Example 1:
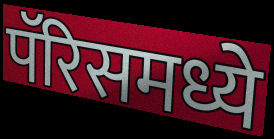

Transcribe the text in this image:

पॅरिसमध्ये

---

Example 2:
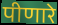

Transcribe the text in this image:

पीणारे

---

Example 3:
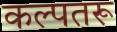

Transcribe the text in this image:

कल्पतरू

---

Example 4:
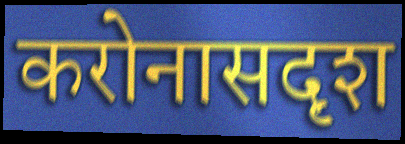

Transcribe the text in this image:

करोनासदृश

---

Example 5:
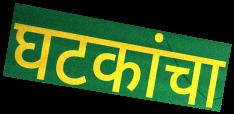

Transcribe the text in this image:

घटकांचा